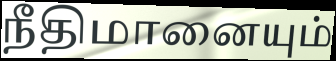
நீதிமானையும்